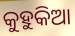
କୁହୁକିଆ